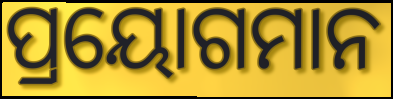
ପ୍ରୟୋଗମାନ